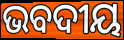
ଭବଦୀୟ